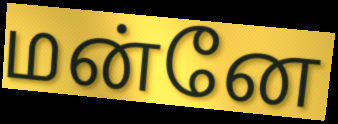
மன்னே